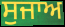
ਸੁਜਾਅ